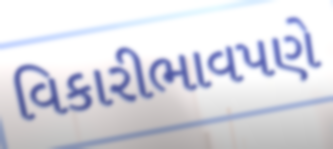
વિકારીભાવપણે